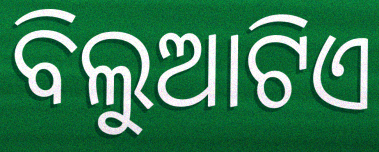
ବିଲୁଆଟିଏ